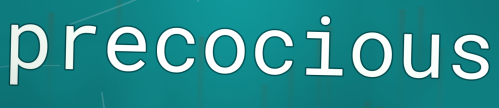
precocious